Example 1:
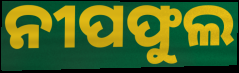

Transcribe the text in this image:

ନୀପଫୁଲ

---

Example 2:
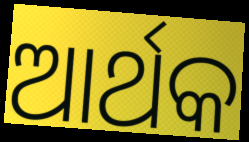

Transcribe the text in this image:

ଆର୍ଥକ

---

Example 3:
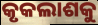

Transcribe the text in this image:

କୃକଲାଶକୁ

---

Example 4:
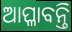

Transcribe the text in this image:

ଆପ୍ଳାବନ୍ତି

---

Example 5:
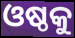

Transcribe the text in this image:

ଓଷ୍ଠକୁ